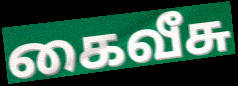
கைவீசு